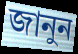
জানুন